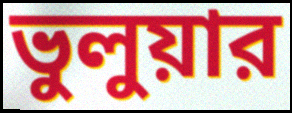
ভুলুয়ার